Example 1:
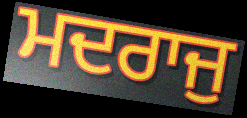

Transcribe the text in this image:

ਮਦਰਾਜੁ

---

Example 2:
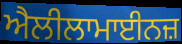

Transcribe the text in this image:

ਐਲੀਲਾਮਾਈਨਜ਼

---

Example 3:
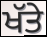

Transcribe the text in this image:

ਖੱਤੇ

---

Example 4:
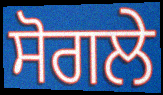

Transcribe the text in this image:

ਸੋਗਲੇ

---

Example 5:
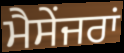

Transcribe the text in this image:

ਮੈਸੇਂਜਰਾਂ